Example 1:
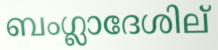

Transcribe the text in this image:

ബംഗ്ലാദേശില്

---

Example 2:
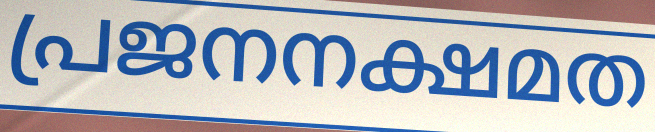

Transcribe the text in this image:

പ്രജനനക്ഷമത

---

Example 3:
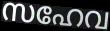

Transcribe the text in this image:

സഹേവ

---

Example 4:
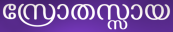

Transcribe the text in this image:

സ്രോതസ്സായ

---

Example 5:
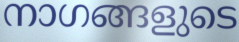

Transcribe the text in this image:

നാഗങ്ങളുടെ